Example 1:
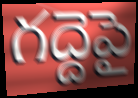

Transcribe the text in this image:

గద్దెపై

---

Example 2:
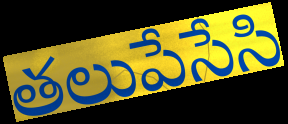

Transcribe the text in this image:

తలుపేసేసి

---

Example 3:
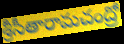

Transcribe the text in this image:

శ్రీసీతారామచంద్రో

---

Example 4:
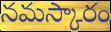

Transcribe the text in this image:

నమస్కారం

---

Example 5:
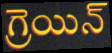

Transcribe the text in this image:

గ్రెయిన్